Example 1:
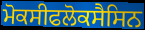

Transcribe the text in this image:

ਮੋਕਸੀਫਲੋਕਸੈਸਿਨ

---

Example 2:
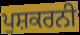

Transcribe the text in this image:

ਪੁਸ਼ਕਰਨੀ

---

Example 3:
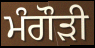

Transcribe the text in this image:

ਮੰਗੌੜੀ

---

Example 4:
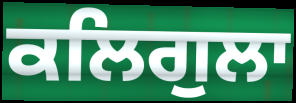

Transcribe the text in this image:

ਕਲਿਗੁਲਾ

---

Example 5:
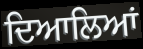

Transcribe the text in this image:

ਦਿਆਲਿਆਂ